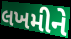
લખમીને